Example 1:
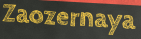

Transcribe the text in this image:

Zaozernaya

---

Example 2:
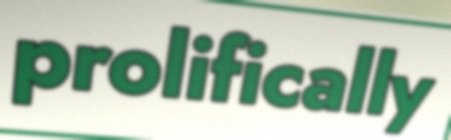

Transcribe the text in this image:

prolifically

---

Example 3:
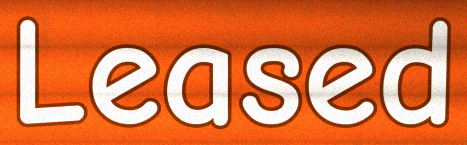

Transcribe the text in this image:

Leased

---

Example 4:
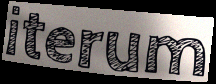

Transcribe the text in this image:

iterum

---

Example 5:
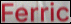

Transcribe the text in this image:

Ferric